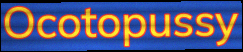
Ocotopussy